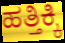
ಹತ್ತಿಕ್ಕಿ